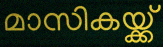
മാസികയ്ക്ക്